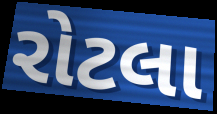
રોટલા